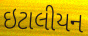
ઇટાલીયન